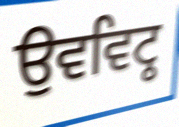
ਉਵਵਿਟ੍ਠ